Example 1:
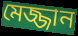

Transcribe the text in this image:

মেজ্জান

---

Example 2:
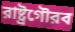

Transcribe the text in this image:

রাষ্ট্রগৌরব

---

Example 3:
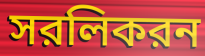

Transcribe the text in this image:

সরলিকরন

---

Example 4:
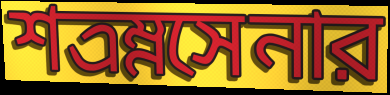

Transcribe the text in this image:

শত্রম্নসেনার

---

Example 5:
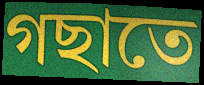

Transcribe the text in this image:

গছাতে